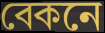
বেকনে